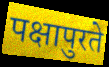
पक्षापुरते